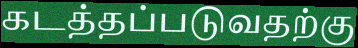
கடத்தப்படுவதற்கு